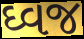
ઘ્વજ